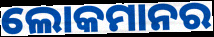
ଲୋକମାନର